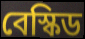
বেস্কিড